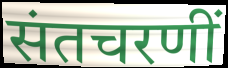
संतचरणीं